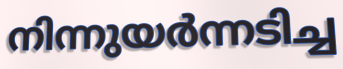
നിന്നുയർന്നടിച്ച